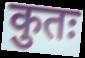
कुतः